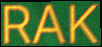
RAK